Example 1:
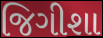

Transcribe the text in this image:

જિગીશા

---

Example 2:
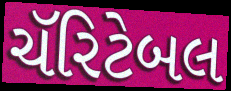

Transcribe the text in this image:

ચૅરિટેબલ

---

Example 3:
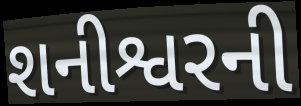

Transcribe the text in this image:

શનીશ્વરની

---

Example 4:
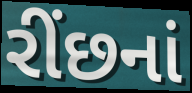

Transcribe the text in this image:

રીંછનાં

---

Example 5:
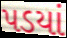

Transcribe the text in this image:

પડયાં